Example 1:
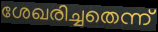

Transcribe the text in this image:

ശേഖരിച്ചതെന്ന്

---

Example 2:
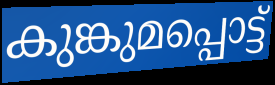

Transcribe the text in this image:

കുങ്കുമപ്പൊട്ട്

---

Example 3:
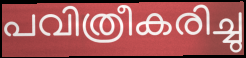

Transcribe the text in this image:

പവിത്രീകരിച്ചു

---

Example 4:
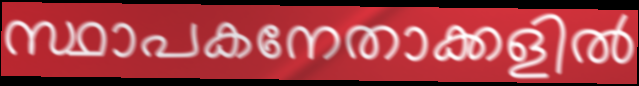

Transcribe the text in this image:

സ്ഥാപകനേതാക്കളിൽ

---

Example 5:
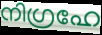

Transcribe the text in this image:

നിഗ്രഹേ